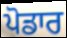
ਪੋਡਾਰ